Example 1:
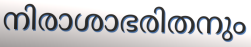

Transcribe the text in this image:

നിരാശാഭരിതനും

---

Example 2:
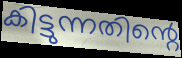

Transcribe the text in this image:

കിട്ടുന്നതിന്റെ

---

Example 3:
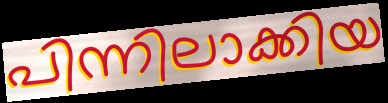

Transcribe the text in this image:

പിന്നിലാക്കിയ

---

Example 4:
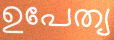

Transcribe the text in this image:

ഉപേത്യ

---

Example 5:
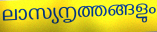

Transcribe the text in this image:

ലാസ്യനൃത്തങ്ങളും